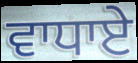
ਵਾਧਾਏ